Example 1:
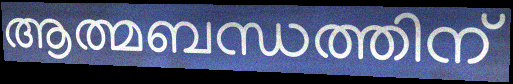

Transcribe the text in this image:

ആത്മബന്ധത്തിന്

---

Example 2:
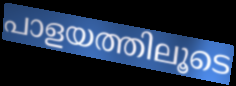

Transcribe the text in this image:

പാളയത്തിലൂടെ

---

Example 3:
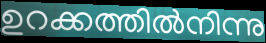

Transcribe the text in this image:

ഉറക്കത്തിൽനിന്നു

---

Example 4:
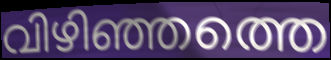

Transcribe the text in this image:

വിഴിഞ്ഞത്തെ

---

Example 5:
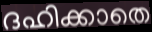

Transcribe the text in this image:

ദഹിക്കാതെ